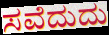
ಸವೆದುದು